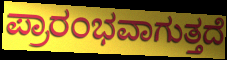
ಪ್ರಾರಂಭವಾಗುತ್ತದೆ